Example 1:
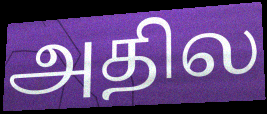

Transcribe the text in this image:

அதில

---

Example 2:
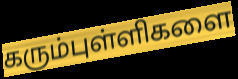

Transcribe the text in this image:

கரும்புள்ளிகளை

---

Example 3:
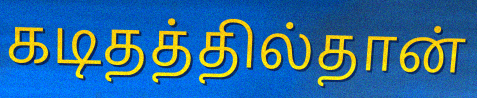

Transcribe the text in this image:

கடிதத்தில்தான்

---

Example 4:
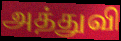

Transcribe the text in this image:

அத்துவி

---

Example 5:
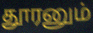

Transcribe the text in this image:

தூரனும்